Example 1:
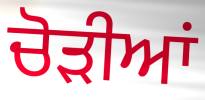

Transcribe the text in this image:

ਚੋੜੀਆਂ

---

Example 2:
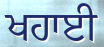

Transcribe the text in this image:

ਖਹਾਈ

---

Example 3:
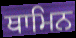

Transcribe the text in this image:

ਥਾਮਿਨ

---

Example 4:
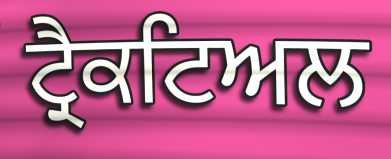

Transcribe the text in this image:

ਟ੍ਰੈਕਟਿਅਲ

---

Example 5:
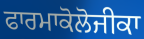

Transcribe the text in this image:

ਫਾਰਮਾਕੋਲੋਜੀਕਾ